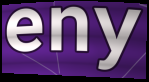
eny